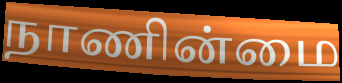
நாணின்மை